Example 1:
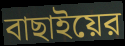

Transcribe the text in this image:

বাছাইয়ের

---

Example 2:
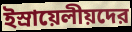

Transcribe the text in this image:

ইস্রায়েলীয়দের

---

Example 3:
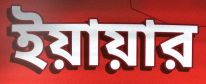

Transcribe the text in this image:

ইয়ায়ার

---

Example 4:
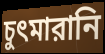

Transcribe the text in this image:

চুৎমারানি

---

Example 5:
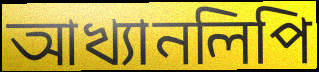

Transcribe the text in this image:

আখ্যানলিপি